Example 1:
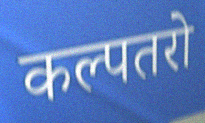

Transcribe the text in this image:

कल्पतरो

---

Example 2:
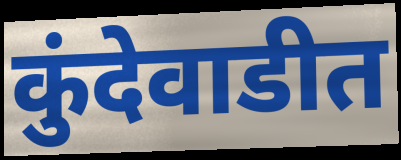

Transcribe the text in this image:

कुंदेवाडीत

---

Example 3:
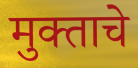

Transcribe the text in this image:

मुक्ताचे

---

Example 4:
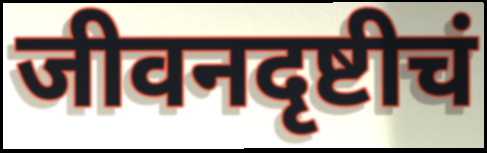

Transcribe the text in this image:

जीवनदृष्टीचं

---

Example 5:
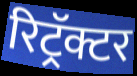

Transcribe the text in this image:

रिट्रॅक्टर